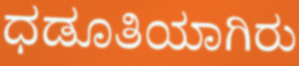
ಧಡೂತಿಯಾಗಿರು